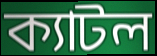
ক্যাটল